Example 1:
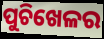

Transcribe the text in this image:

ପୁଚିଖେଳର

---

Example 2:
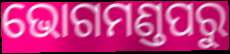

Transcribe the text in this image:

ଭୋଗମଣ୍ଡପରୁ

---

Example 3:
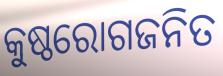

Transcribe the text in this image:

କୁଷ୍ଠରୋଗଜନିତ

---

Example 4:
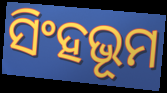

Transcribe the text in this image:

ସିଂହଭୂମ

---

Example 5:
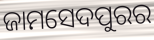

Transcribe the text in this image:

ଜାମସେଦପୁରର